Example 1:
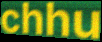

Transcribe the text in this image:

chhu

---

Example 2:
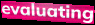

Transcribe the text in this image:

evaluating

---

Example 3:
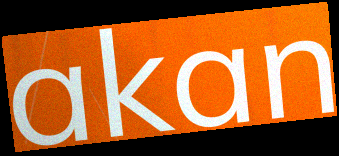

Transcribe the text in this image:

akan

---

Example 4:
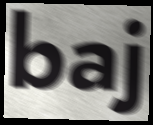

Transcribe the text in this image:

baj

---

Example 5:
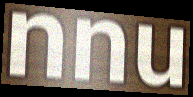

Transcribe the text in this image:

nnu